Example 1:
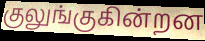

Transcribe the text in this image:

குலுங்குகின்றன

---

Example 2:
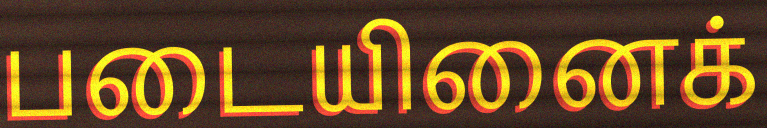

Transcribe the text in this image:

படையினைக்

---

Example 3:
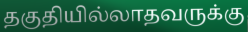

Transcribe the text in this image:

தகுதியில்லாதவருக்கு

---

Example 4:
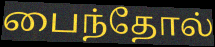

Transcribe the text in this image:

பைந்தோல்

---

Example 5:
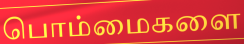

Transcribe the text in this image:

பொம்மைகளை